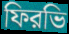
ফিরভি